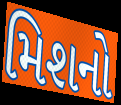
મિશનો